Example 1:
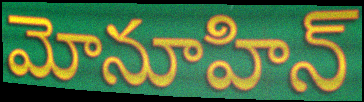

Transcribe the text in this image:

మోనూహిన్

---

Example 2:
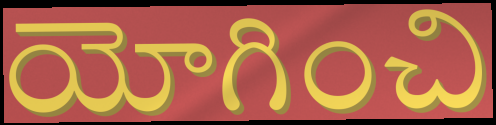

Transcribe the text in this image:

యోగించి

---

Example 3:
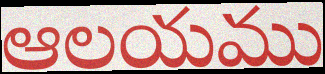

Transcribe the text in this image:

ఆలయము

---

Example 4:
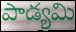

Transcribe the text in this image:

పాడ్యమి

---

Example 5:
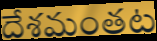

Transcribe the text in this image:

దేశమంతట